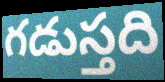
గడుస్తది